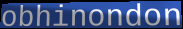
obhinondon